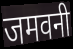
जमवनी